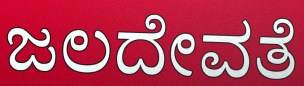
ಜಲದೇವತೆ